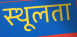
स्थूलता